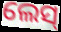
ଲେସ୍